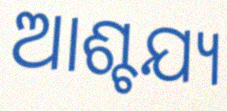
ଆଶ୍ଚଯ୍ୟ